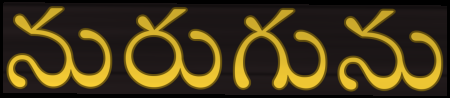
నురుగును